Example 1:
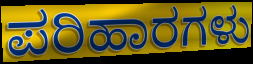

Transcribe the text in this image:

ಪರಿಹಾರಗಳು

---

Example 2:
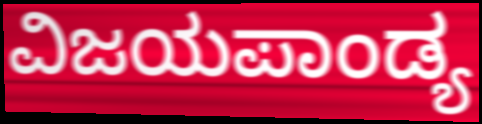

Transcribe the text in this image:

ವಿಜಯಪಾಂಡ್ಯ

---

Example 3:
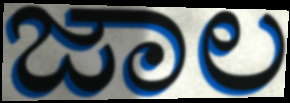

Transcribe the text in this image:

ಜಾಲ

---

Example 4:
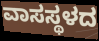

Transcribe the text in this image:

ವಾಸಸ್ಥಳದ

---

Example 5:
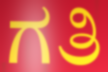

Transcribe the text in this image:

ಗತಿ